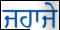
ਜਹਾਜੇ